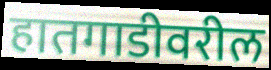
हातगाडीवरील